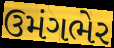
ઉમંગભેર